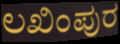
ಲಖಿಂಪುರ